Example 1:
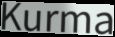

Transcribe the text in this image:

Kurma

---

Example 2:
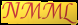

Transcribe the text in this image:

NMML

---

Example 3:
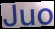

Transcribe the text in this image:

Juo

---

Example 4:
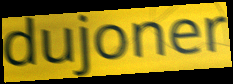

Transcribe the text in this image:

dujoner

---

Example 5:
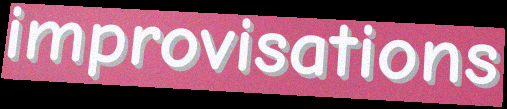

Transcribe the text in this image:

improvisations